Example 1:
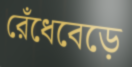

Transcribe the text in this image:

রেঁধেবেড়ে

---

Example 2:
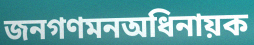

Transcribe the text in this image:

জনগণমনঅধিনায়ক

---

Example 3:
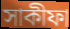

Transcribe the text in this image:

সাকীফা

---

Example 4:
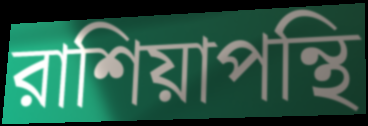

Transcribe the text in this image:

রাশিয়াপন্থি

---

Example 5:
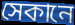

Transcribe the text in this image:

সেকানে